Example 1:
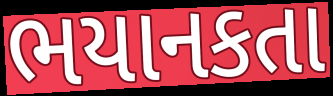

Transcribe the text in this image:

ભયાનકતા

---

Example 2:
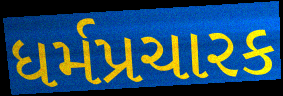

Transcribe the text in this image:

ધર્મપ્રચારક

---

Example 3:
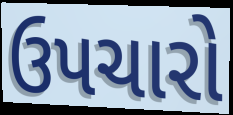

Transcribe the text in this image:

ઉપચારો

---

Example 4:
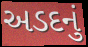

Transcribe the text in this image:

અડદનું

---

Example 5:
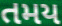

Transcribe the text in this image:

તમય